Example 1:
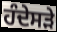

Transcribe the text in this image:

ਹੰਦੇਸੜੇ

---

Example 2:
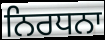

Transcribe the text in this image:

ਨਿਰਧਨਾ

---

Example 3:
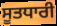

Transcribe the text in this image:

ਸੂਤਧਾਰੀ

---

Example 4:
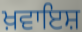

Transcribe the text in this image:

ਖ਼ਵਾਇਸ਼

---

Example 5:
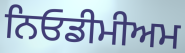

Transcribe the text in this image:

ਨਿਓਡੀਮੀਅਮ